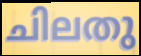
ചിലതു